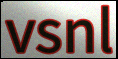
vsnl